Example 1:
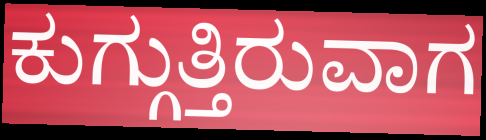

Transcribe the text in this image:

ಕುಗ್ಗುತ್ತಿರುವಾಗ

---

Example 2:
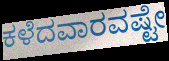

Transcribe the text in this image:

ಕಳೆದವಾರವಷ್ಟೇ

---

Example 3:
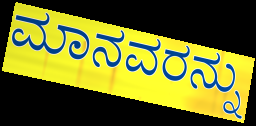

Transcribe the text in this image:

ಮಾನವರನ್ನು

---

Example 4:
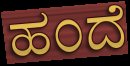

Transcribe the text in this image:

ಹಂದೆ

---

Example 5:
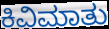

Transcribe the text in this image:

ಕಿವಿಮಾತು